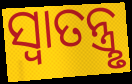
ସ୍ବାତନ୍ତ୍ରୢ